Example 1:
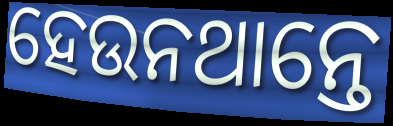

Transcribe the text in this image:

ହେଉନଥାନ୍ତେ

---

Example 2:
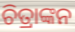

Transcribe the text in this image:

ଚିତ୍ରାଙ୍କନ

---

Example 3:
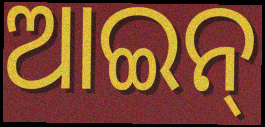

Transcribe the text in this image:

ଆଇନ୍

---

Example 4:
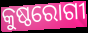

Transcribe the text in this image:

କୁଷ୍ଠରୋଗୀ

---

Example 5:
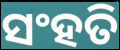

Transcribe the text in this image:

ସଂହତି